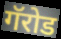
गॅरोड